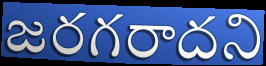
జరగరాదని